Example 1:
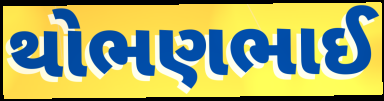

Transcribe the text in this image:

થોભણભાઈ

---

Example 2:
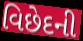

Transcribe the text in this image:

વિછેદની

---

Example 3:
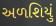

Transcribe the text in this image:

અળશિયું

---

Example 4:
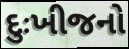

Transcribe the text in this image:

દુઃખીજનો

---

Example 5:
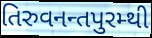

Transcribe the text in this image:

તિરુવનન્તપુરમ્થી